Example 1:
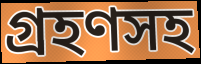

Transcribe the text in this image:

গ্রহণসহ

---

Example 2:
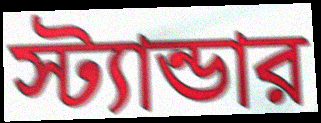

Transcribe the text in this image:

স্ট্যান্ডার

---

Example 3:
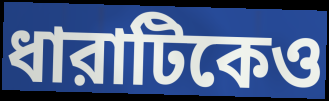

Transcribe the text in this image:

ধারাটিকেও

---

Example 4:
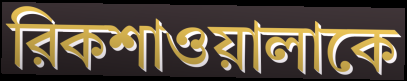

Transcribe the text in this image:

রিকশাওয়ালাকে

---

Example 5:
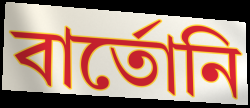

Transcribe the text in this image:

বার্তোনি